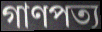
গাণপত্য